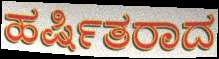
ಹರ್ಷಿತರಾದ